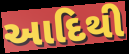
આદિથી